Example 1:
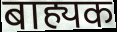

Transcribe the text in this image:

बाह्यक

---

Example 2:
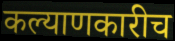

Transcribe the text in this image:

कल्याणकारीच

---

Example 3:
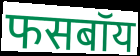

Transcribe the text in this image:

फसबॉय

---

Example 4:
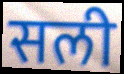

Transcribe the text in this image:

सली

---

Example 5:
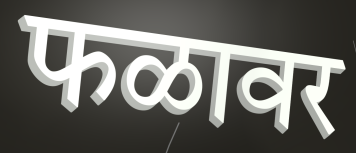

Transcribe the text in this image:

फळावर